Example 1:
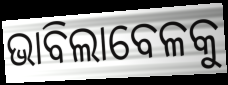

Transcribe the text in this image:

ଭାବିଲାବେଳକୁ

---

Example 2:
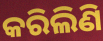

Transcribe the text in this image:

କରିଲିଣି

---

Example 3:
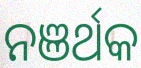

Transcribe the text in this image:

ନଞର୍ଥକ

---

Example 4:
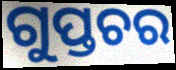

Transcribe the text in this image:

ଗୁପ୍ତଚର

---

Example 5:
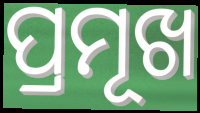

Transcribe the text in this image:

ପ୍ରମୂଖ